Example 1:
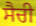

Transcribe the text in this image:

ਸੈਚੀ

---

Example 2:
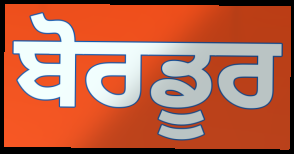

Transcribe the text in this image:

ਬੋਰਡੂਰ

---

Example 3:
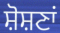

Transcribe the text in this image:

ਸ਼ੋਸ਼ਣਾਂ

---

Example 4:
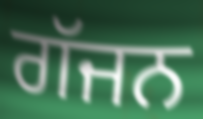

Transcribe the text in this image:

ਗੱਜਨ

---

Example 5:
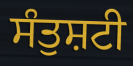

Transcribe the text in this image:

ਸੰਤੁਸ਼ਟੀ